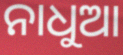
ନାଧୁଆ